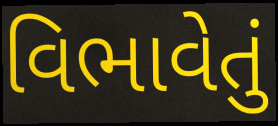
વિભાવેતું